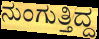
ನುಂಗುತ್ತಿದ್ದ